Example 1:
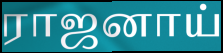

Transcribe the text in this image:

ராஜனாய்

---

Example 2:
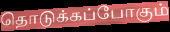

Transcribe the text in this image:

தொடுக்கப்போகும்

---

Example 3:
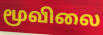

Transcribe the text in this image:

மூவிலை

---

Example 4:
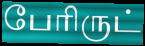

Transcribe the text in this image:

பேரிருட்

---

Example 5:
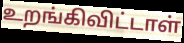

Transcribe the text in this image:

உறங்கிவிட்டாள்